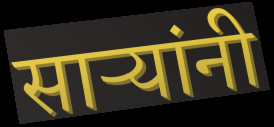
साऱ्यांनी